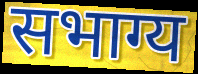
सभाग्य